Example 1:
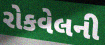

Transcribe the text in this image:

રોકવેલની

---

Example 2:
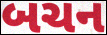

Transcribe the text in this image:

બચન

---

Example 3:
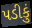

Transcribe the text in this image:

પડીકું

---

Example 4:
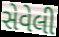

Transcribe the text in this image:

સેવેલી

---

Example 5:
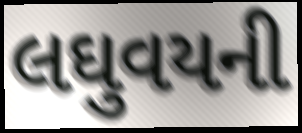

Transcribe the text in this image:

લઘુવયની